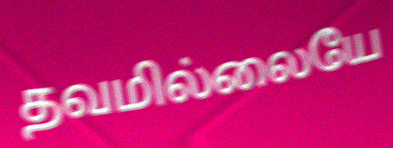
தவமில்லையே